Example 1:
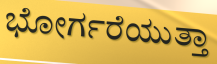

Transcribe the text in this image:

ಭೋರ್ಗರೆಯುತ್ತಾ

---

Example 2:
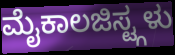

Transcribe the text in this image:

ಮೈಕಾಲಜಿಸ್ಟ್ಗಳು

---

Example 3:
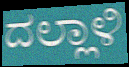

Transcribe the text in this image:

ದಲ್ಲಾಳಿ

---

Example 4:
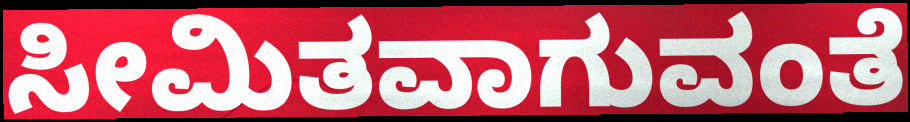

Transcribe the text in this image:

ಸೀಮಿತವಾಗುವಂತೆ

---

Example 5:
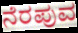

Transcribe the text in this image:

ನೆರಪುವ